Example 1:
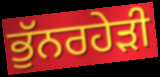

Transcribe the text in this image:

ਭੁੱਨਰਹੇੜੀ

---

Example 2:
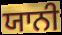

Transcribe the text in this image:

ਯਾਨੀ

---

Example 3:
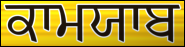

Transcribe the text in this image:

ਕਾਮਯਾਬ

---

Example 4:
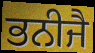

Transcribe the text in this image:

ਭਨੀਜੈ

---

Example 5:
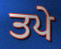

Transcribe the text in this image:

ਤਪੇ